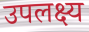
उपलक्ष्य